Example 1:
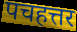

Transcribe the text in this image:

पचहत्तर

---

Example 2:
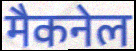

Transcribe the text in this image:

मैकनेल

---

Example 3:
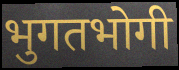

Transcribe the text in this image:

भुगतभोगी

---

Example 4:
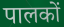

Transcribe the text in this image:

पालकों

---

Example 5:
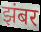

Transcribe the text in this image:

झंबर